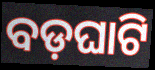
ବଡ଼ଘାଟି